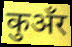
कुअँर